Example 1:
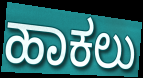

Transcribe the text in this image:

ಹಾಕಲು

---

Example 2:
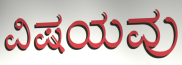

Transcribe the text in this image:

ವಿಷಯವು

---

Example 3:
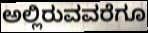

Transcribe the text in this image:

ಅಲ್ಲಿರುವವರೆಗೂ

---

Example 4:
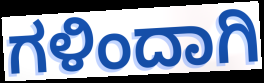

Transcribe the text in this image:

ಗಳಿಂದಾಗಿ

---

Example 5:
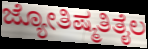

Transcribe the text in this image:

ಜ್ಯೋತಿಷ್ಮತಿತೈಲ